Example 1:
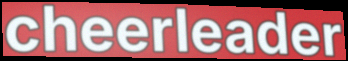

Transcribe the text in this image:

cheerleader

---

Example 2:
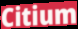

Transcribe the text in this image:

Citium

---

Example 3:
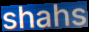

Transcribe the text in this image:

shahs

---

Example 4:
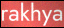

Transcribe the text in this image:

rakhya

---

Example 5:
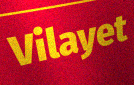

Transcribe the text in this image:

Vilayet